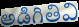
అడిగితివి